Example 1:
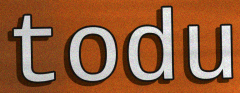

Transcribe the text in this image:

todu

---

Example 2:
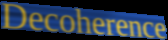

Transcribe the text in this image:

Decoherence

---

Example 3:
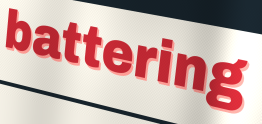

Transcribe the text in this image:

battering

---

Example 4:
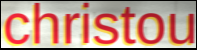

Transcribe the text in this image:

christou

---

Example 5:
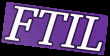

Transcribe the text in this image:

FTIL